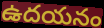
ఉదయనం